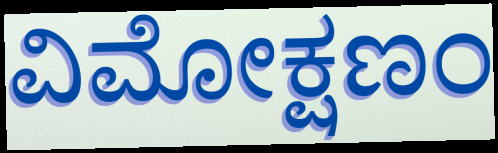
ವಿಮೋಕ್ಷಣಂ